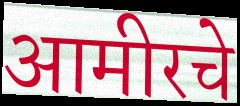
आमीरचे